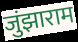
जुंझाराम